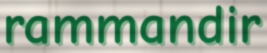
rammandir